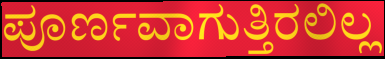
ಪೂರ್ಣವಾಗುತ್ತಿರಲಿಲ್ಲ